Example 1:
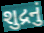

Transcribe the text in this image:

શુદ્રનું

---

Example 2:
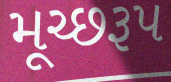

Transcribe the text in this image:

મૂચ્છરૂપ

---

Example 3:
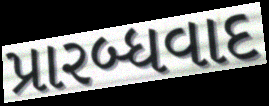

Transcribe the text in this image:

પ્રારબ્ધવાદ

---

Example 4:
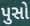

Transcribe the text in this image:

પુસો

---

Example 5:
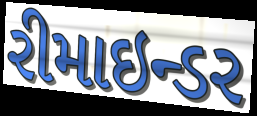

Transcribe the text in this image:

રીમાઇન્ડર